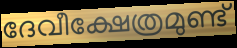
ദേവീക്ഷേത്രമുണ്ട്